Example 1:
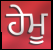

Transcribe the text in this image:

ਹੇਮੂ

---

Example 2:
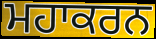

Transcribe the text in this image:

ਮਹਾਕਰਨ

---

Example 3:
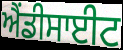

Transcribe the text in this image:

ਐਂਡੀਸਾਈਟ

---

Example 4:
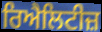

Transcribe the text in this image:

ਰਿਐਲਿਟੀਜ਼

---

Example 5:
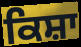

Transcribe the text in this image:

ਕਿਸ਼ਾ